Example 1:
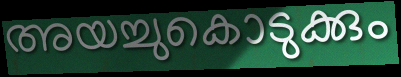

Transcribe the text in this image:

അയച്ചുകൊടുക്കും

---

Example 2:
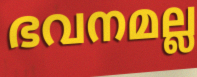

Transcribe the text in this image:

ഭവനമല്ല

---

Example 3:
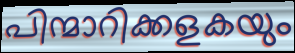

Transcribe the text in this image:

പിന്മാറിക്കളകയും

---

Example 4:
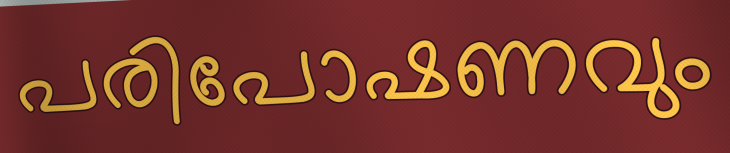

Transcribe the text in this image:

പരിപോഷണവും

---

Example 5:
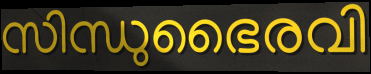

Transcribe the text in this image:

സിന്ധുഭൈരവി